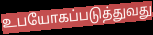
உபயோகப்படுத்துவது